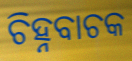
ଚିହ୍ନବାଚକ